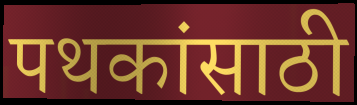
पथकांसाठी